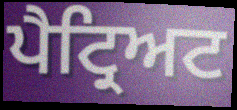
ਪੈਟ੍ਰਿਅਟ